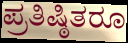
ಪ್ರತಿಷ್ಠಿತರೂ